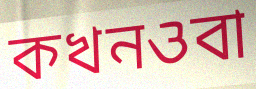
কখনওবা